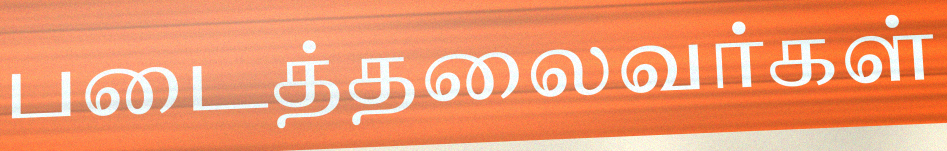
படைத்தலைவர்கள்